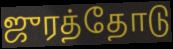
ஜுரத்தோடு